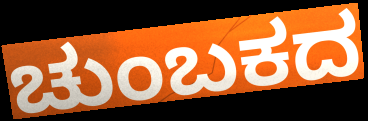
ಚುಂಬಕದ